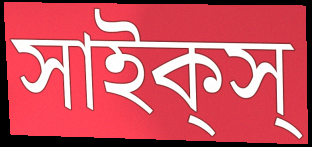
সাইক্‌স্